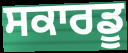
ਸਕਾਰਡੂ